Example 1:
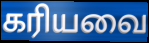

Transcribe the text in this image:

கரியவை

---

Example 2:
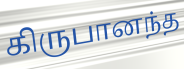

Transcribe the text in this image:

கிருபானந்த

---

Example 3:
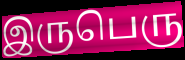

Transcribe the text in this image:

இருபெரு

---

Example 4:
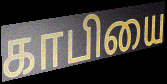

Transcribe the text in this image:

காபியை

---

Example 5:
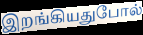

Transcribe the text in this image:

இறங்கியதுபோல்